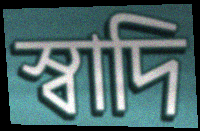
স্বাদি